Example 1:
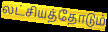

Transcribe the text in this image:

லட்சியத்தோடும்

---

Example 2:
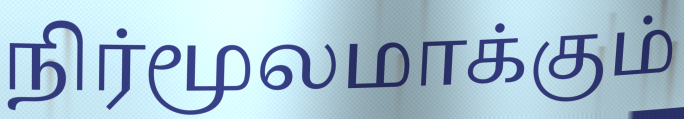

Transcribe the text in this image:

நிர்மூலமாக்கும்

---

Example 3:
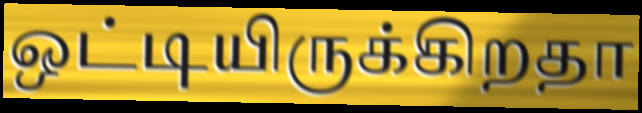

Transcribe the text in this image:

ஒட்டியிருக்கிறதா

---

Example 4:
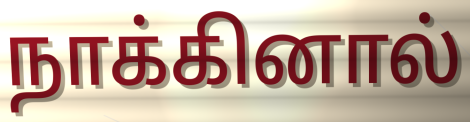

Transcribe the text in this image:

நாக்கினால்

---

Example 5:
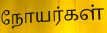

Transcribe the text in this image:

நோயர்கள்